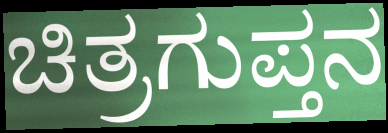
ಚಿತ್ರಗುಪ್ತನ